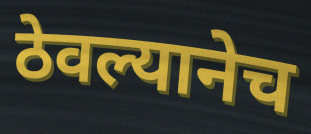
ठेवल्यानेच